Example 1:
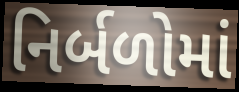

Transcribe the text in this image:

નિર્બળોમાં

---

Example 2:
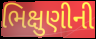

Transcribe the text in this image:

ભિક્ષુણીની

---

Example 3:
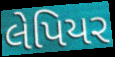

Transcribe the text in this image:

લેપિયર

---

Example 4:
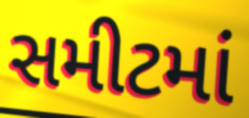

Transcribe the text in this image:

સમીટમાં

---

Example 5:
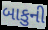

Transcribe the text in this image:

બાકુની